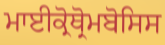
ਮਾਈਕ੍ਰੋਥ੍ਰੋਮਬੋਸਿਸ